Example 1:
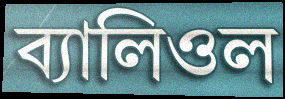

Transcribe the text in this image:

ব্যালিওল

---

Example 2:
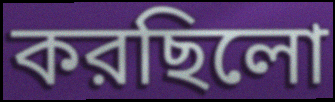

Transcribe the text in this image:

করছিলো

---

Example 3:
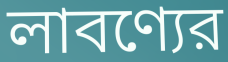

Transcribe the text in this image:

লাবণ্যের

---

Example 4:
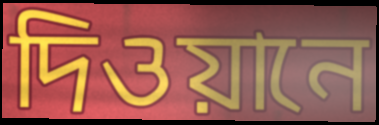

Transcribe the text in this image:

দিওয়ানে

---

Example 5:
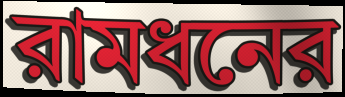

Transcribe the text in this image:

রামধনের